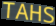
TAHS